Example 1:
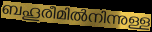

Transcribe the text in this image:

ബഹൂരീമിൽനിന്നുള്ള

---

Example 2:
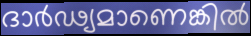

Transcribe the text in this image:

ദാർഢ്യമാണെങ്കിൽ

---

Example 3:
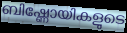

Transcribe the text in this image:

ബിഷ്ണോയികളുടെ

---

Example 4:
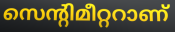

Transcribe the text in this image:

സെന്റിമീറ്ററാണ്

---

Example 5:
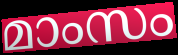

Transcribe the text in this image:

മാംസം